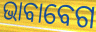
ଭାବାବେଗ